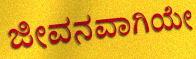
ಜೀವನವಾಗಿಯೇ